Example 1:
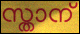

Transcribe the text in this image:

സ്താന്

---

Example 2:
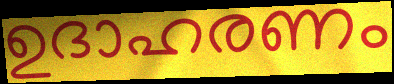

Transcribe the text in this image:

ഉദാഹരണം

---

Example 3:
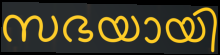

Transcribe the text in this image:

സഭയായി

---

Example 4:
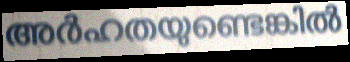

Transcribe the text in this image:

അർഹതയുണ്ടെങ്കിൽ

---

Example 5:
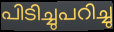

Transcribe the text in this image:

പിടിച്ചുപറിച്ചു